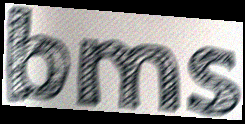
bms